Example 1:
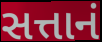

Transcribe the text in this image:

સત્તાનં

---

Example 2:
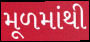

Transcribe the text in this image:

મૂળમાંથી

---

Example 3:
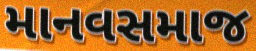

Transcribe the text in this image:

માનવસમાજ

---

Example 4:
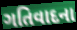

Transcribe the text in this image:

ગતિવાદના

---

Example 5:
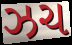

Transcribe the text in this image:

ઝચ